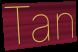
Tan